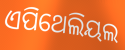
ଏପିଥେଲିୟଲ